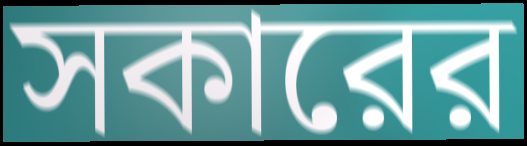
সকারের